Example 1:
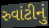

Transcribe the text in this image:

રુવાંટીનું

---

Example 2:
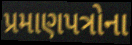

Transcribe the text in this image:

પ્રમાણપત્રોના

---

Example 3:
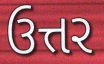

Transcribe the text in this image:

ઉત્તર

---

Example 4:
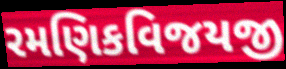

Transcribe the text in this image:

રમણિકવિજયજી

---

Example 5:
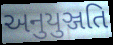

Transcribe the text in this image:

અનુયુઞ્જતિ